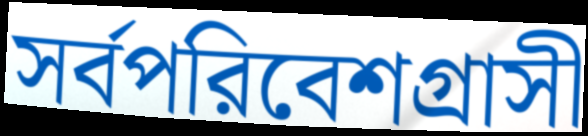
সর্বপরিবেশগ্রাসী